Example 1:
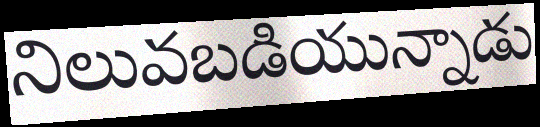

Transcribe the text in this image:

నిలువబడియున్నాడు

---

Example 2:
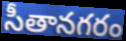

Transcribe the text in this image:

సీతానగరం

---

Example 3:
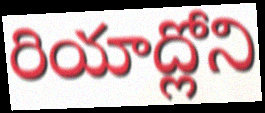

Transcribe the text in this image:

రియాద్లోని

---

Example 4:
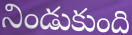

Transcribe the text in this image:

నిండుకుంది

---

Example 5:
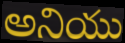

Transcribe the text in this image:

అనియు